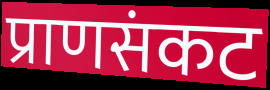
प्राणसंकट